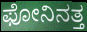
ಫೋನಿನತ್ತ